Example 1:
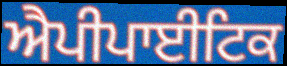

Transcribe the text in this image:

ਐਪੀਪਾਈਟਿਕ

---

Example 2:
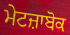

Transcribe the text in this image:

ਮੇਟਜ਼ਾਬੋਕ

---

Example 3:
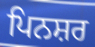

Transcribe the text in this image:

ਪਿਨਸ਼ਰ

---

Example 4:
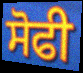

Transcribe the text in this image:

ਸੋਫੀ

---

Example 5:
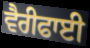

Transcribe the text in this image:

ਵੈਰੀਫਾਈ